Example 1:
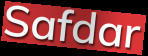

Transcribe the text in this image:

Safdar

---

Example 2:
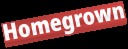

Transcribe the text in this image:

Homegrown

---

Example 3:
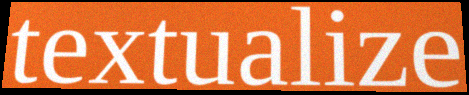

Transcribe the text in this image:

textualize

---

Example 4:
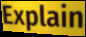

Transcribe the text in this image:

Explain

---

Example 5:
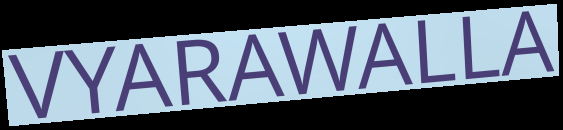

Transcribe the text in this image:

VYARAWALLA